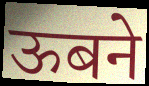
ऊबने